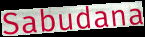
Sabudana